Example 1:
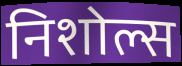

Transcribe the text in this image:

निशोल्स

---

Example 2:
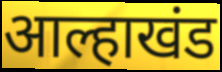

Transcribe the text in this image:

आल्हाखंड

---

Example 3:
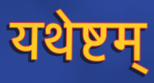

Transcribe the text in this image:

यथेष्टम्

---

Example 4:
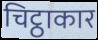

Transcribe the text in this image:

चिट्ठाकार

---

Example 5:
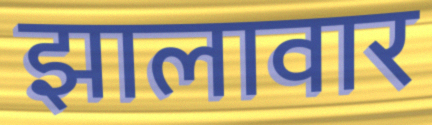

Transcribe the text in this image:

झालावार